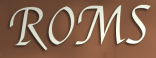
ROMS